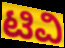
ಟಿವಿ